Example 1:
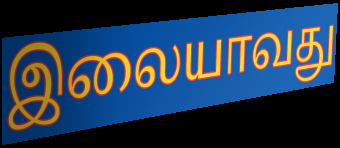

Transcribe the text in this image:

இலையாவது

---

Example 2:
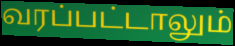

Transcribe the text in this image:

வரப்பட்டாலும்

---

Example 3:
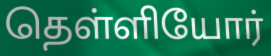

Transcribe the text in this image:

தெள்ளியோர்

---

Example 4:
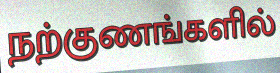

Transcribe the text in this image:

நற்குணங்களில்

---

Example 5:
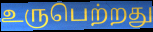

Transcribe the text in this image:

உருபெற்றது